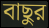
বাছুর